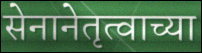
सेनानेतृत्वाच्या